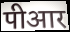
पीआर